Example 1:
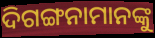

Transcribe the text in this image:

ଦିଗଙ୍ଗନାମାନଙ୍କୁ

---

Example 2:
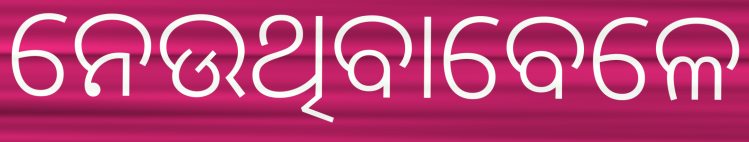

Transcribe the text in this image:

ନେଉଥିବାବେଳେ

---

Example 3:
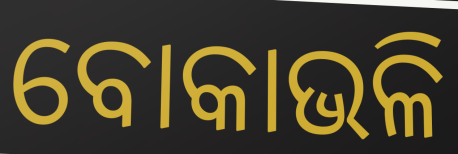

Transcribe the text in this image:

ବୋକାଭଳି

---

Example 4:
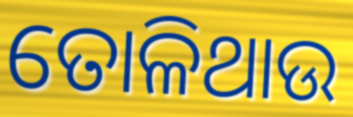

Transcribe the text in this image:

ତୋଳିଥାଉ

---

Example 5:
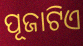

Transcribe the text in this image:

ପୂଜାଟିଏ